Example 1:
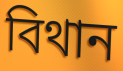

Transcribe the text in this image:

বিথান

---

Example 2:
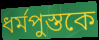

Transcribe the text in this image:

ধর্মপুস্তকে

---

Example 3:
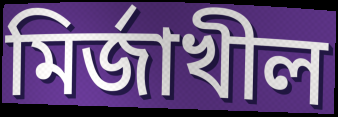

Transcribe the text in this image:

মির্জাখীল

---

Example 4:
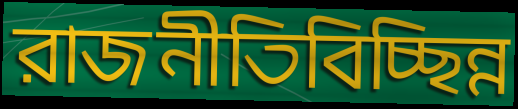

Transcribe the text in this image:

রাজনীতিবিচ্ছিন্ন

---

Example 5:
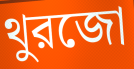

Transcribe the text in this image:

থুরজো